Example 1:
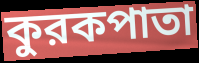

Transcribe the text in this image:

কুরকপাতা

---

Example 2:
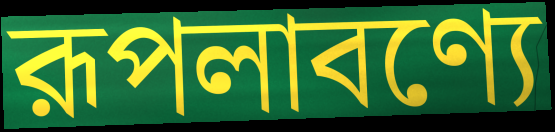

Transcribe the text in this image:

রূপলাবণ্যে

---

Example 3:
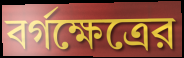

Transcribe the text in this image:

বর্গক্ষেত্রের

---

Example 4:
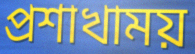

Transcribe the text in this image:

প্রশাখাময়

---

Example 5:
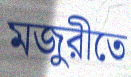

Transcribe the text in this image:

মজুরীতে